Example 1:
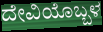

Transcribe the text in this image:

ದೇವಿಯೊಬ್ಬಳ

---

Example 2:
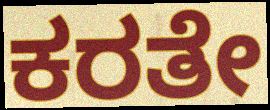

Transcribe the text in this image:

ಕರತೇ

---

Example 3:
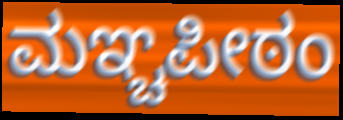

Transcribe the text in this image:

ಮಞ್ಚಪೀಠಂ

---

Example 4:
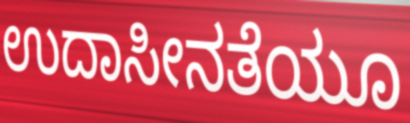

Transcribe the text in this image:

ಉದಾಸೀನತೆಯೂ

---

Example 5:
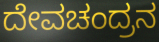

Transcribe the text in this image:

ದೇವಚಂದ್ರನ